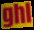
ghl